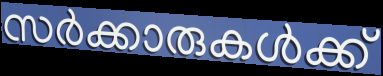
സർക്കാരുകൾക്ക്